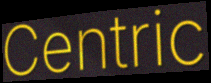
Centric